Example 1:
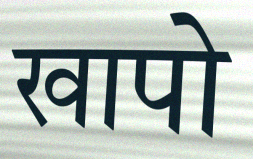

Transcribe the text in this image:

खापो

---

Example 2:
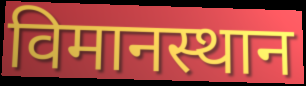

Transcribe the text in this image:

विमानस्थान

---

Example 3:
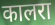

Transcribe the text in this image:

कालरा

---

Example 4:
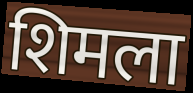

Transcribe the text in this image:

शिमला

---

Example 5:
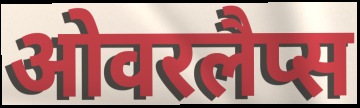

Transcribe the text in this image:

ओवरलैप्स